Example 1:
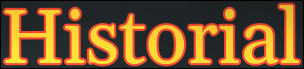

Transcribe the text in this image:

Historial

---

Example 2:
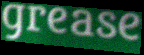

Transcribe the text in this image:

grease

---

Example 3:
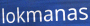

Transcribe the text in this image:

lokmanas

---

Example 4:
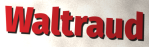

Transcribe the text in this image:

Waltraud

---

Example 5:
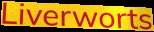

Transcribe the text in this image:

Liverworts